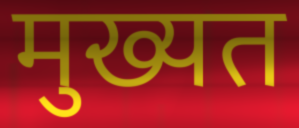
मुख्यत